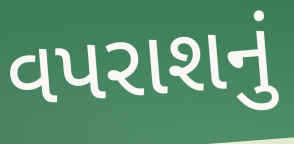
વપરાશનું